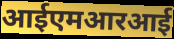
आईएमआरआई